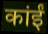
कांईं